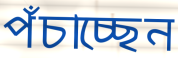
পঁচাচ্ছেন